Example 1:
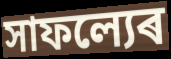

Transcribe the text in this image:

সাফল্যেৰ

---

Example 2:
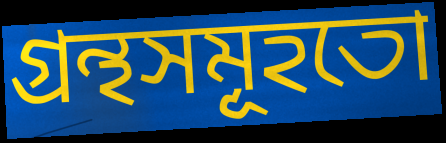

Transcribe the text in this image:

গ্ৰন্থসমূহতো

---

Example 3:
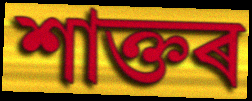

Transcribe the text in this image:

শাক্তৰ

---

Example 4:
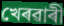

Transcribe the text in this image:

খেৰৱাৰী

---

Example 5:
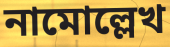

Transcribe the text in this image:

নামোল্লেখ